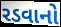
રડવાનો